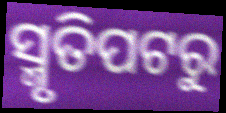
ସ୍ମୃତିପଟରୁ